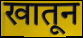
खातून